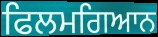
ਫਿਲਮਗਿਆਨ